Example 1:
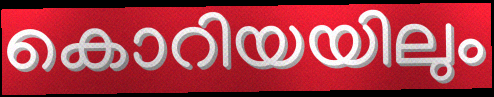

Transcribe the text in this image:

കൊറിയയിലും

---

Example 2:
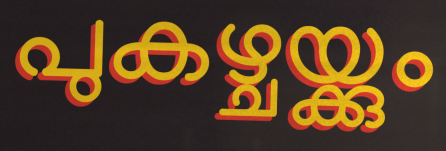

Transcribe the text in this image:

പുകഴ്ചയ്ക്കും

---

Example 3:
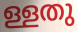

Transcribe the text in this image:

ള്ളതു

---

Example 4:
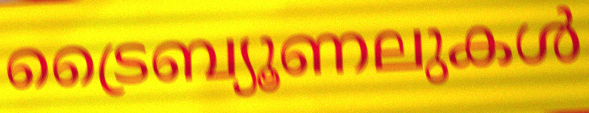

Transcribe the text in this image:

ട്രൈബ്യൂണലുകൾ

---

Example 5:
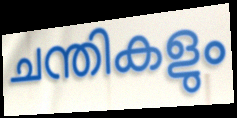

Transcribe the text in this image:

ചന്തികളും